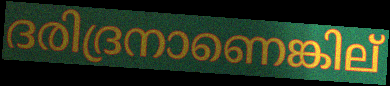
ദരിദ്രനാണെങ്കില്